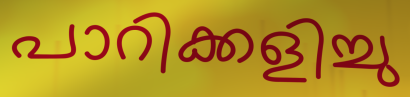
പാറിക്കളിച്ചു